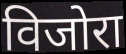
विजोरा